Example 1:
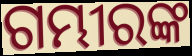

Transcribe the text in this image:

ଗମ୍ଭୀରଙ୍କ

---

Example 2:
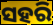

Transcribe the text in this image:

ସହରି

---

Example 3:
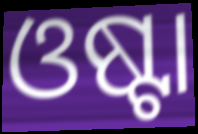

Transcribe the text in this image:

ଓଷ୍ଟା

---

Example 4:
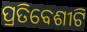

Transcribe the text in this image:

ପ୍ରତିବେଶୀଟି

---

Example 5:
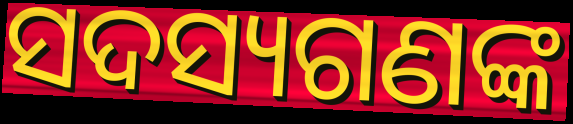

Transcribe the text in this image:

ସଦସ୍ୟଗଣଙ୍କ